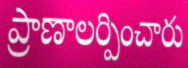
ప్రాణాలర్పించారు